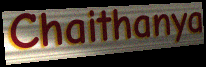
Chaithanya